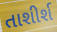
તાશીર્શ